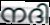
നദി